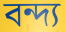
বন্দ্য